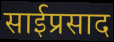
साईप्रसाद